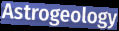
Astrogeology